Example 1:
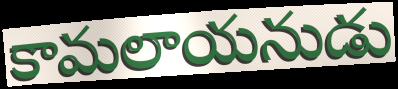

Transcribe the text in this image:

కామలాయనుడు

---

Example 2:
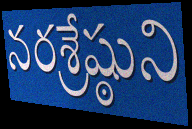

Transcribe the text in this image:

నరశ్రేష్ఠుని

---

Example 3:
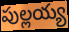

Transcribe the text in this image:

పుల్లయ్య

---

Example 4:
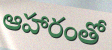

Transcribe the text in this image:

ఆహారంతో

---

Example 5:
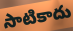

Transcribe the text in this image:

సాటికాదు